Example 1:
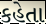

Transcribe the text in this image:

કહેતા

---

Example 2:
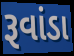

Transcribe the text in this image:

રૂવાંડા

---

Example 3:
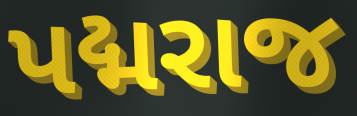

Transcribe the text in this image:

પદ્મરાજ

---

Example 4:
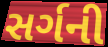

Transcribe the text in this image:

સર્ગની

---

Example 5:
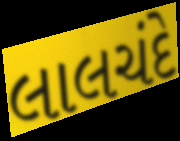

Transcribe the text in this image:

લાલચંદે